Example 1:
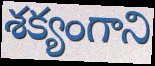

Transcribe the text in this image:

శక్యంగాని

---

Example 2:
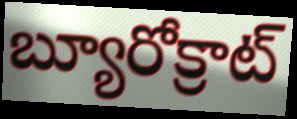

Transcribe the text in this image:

బ్యూరోక్రాట్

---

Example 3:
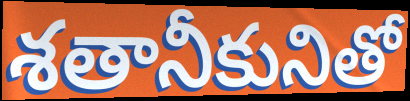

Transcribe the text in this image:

శతానీకునితో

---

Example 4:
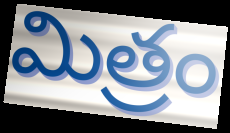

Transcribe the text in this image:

మిత్రం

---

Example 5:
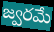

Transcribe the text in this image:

జ్వరమే